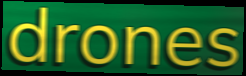
drones